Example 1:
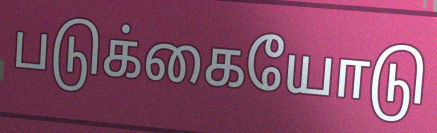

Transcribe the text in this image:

படுக்கையோடு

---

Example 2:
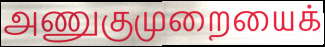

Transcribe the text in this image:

அணுகுமுறையைக்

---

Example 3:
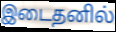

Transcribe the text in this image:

இடைதனில்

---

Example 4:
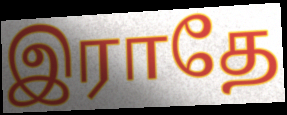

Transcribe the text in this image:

இராதே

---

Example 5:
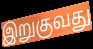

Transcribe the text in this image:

இறுகுவது